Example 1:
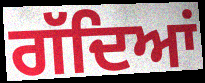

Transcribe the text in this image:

ਗੱਦਿਆਂ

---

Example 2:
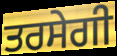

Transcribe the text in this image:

ਤਰਸੇਗੀ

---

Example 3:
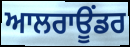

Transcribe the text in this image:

ਆਲਰਾਊਂਡਰ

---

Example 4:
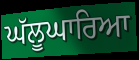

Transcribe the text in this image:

ਘੱਲੂਘਾਰਿਆ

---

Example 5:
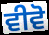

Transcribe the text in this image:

ਵੀਵੋ